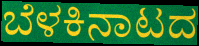
ಬೆಳಕಿನಾಟದ